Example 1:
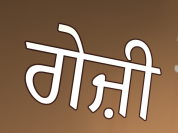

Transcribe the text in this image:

ਗੇਜ਼ੀ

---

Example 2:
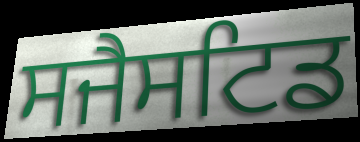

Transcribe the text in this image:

ਸਜੈਸਟਿਡ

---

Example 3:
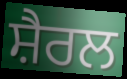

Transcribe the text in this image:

ਸ਼ੈਰਲ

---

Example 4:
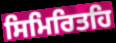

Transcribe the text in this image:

ਸਿਮਿਰਿਤਹਿ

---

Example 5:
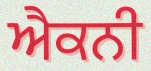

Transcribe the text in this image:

ਐਕਨੀ